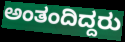
ಅಂತಂದಿದ್ದರು